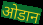
ओडान